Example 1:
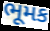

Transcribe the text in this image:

ભૂમક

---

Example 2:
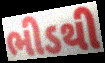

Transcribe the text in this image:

ભીડથી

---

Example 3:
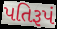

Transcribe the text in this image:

પતિરૂપં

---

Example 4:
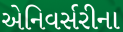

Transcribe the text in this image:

એનિવર્સરીના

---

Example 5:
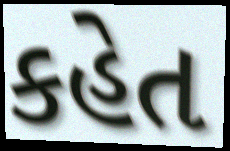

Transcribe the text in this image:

કહેત